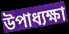
উপাধ্যক্ষা